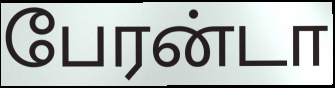
பேரன்டா